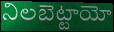
నిలబెట్టాయో